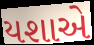
યશાએ